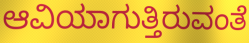
ಆವಿಯಾಗುತ್ತಿರುವಂತೆ